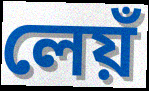
লেয়ঁ